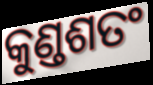
କୁଣ୍ଡଶତଂ